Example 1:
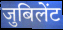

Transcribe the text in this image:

जुबिलेंट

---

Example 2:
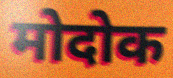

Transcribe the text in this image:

मोदोक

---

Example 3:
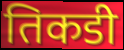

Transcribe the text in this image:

तिकडी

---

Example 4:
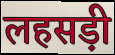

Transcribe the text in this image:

लहसड़ी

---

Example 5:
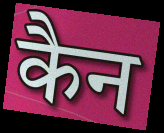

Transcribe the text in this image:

कैन